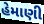
હેમાણી